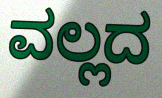
ವಲ್ಲದ